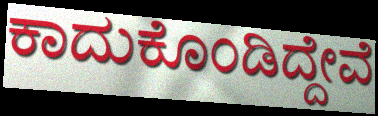
ಕಾದುಕೊಂಡಿದ್ದೇವೆ